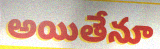
అయితేనూ